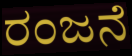
ರಂಜನೆ